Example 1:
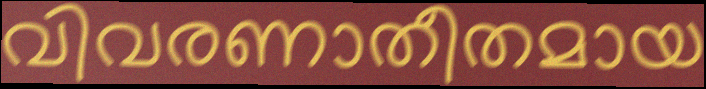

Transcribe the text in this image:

വിവരണാതീതമായ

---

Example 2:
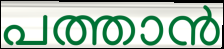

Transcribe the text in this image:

പത്താൻ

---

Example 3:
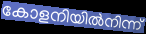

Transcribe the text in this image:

കോളനിയിൽനിന്ന്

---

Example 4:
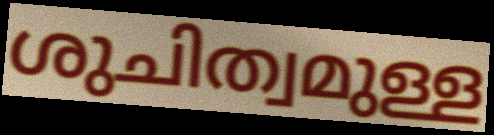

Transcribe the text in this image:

ശുചിത്വമുള്ള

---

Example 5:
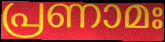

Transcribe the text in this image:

പ്രണാമഃ